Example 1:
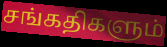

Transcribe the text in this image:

சங்கதிகளும்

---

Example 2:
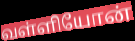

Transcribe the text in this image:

வள்ளியோன்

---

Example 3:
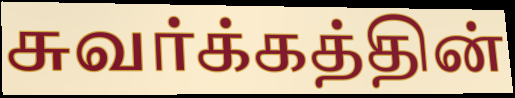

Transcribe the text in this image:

சுவர்க்கத்தின்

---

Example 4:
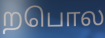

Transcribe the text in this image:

றபொல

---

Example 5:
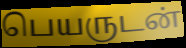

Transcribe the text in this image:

பெயருடன்